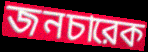
জনচারেক